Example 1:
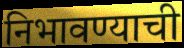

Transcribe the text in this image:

निभावण्याची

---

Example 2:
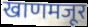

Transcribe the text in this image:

खाणमजूर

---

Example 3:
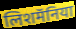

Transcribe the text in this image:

लिशमॅनिया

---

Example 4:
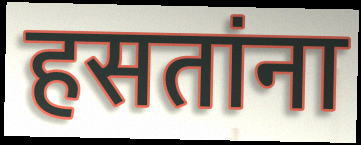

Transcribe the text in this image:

हसतांना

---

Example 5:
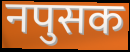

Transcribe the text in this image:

नपुसक